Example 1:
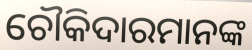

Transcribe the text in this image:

ଚୌକିଦାରମାନଙ୍କ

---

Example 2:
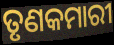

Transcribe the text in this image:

ତୃଣକମାରୀ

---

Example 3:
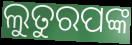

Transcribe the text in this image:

ଲୁତୁରପଙ୍କ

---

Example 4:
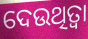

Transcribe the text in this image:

ଦେଉଥିତ୍ବା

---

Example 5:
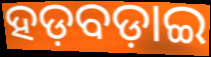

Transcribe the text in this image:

ହଡ଼ବଡ଼ାଇ